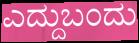
ಎದ್ದುಬಂದು